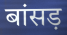
बांसड़